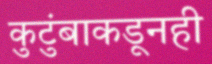
कुटुंबाकडूनही